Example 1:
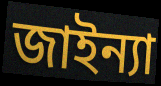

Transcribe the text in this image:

জাইন্যা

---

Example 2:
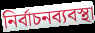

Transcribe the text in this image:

নির্বাচনব্যবস্থা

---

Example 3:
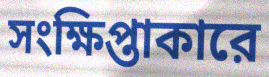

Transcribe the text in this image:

সংক্ষিপ্তাকারে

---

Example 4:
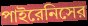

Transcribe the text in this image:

পাইরেনিসের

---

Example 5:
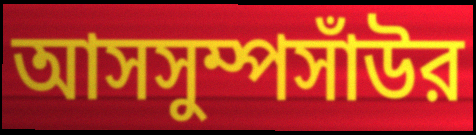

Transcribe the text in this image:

আসসুম্পসাঁউর